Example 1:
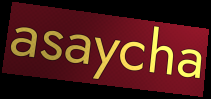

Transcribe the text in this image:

asaycha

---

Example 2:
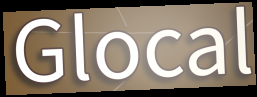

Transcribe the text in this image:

Glocal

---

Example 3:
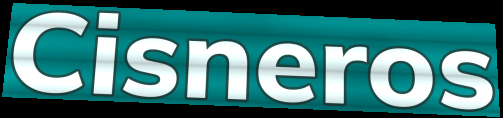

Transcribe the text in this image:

Cisneros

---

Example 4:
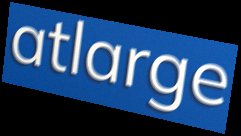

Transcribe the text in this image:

atlarge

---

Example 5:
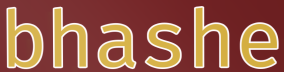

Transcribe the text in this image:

bhashe